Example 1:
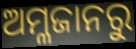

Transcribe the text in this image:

ଅମ୍ଳଜାନରୁ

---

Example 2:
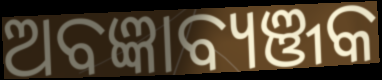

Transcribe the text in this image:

ଅବଜ୍ଞାବ୍ୟଞ୍ଜକ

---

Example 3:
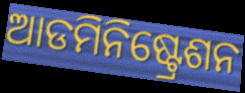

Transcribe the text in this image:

ଆଡମିନିଷ୍ଟ୍ରେଶନ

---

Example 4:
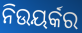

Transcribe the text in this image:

ନିଉୟର୍କର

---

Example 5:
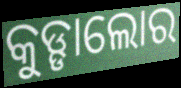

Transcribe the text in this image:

କୁଡ୍ଡାଲୋର